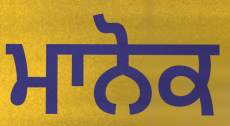
ਮਾਨੋਕ